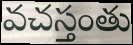
వచస్తంతు